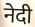
नेदी